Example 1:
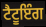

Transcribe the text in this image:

ਟੈਟੂਇੰਗ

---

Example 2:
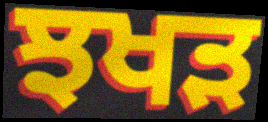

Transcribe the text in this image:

ਝਖੜ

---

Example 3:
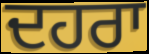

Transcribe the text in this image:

ਦਹਰਾ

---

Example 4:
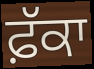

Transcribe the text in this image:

ਫ਼ੱਕਾ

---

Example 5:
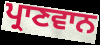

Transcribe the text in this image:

ਪ੍ਰਾਣਵਾਨ